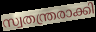
സ്വതന്ത്രരാക്കി